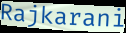
Rajkarani